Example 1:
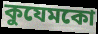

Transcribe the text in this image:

কুযেমকো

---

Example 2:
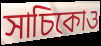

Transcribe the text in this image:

সাচিকোও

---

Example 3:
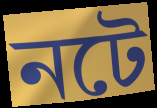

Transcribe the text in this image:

নটে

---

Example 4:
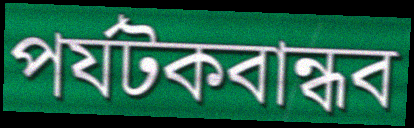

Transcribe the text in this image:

পর্যটকবান্ধব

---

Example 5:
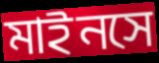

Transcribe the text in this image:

মাইনসে